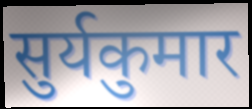
सुर्यकुमार